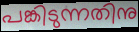
പങ്കിടുന്നതിനു